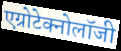
एग्रोटेक्नोलॉजी